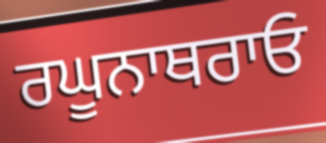
ਰਘੂਨਾਥਰਾਓ